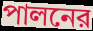
পালনের